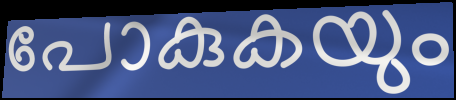
പോകുകയും